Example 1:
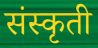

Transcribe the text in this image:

संस्कृती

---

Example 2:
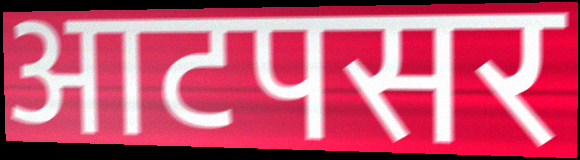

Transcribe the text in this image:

आटपसर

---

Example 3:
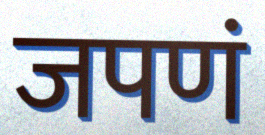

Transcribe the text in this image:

जपणं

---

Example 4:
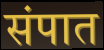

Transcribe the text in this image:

संपात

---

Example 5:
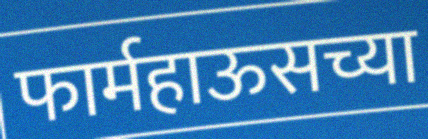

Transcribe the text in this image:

फार्महाऊसच्या